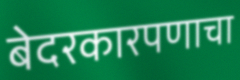
बेदरकारपणाचा